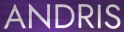
ANDRIS